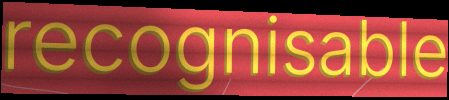
recognisable